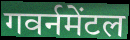
गवर्नमेंटल